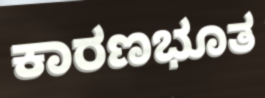
ಕಾರಣಭೂತ